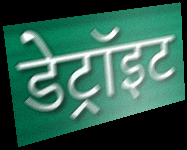
डेट्रॉइट